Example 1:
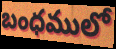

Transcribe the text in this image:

బంధములో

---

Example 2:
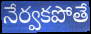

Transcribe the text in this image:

నేర్వకపోతే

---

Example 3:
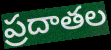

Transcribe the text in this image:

ప్రదాతల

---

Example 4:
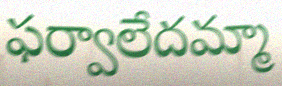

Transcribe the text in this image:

ఫర్వాలేదమ్మా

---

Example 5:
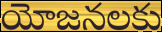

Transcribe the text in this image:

యోజనలకు